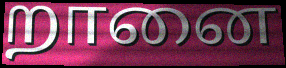
றானை